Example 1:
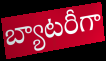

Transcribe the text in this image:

బ్యాటరీగా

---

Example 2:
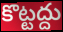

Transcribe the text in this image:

కొట్టద్దు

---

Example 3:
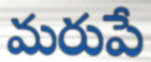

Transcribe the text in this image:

మరుపే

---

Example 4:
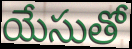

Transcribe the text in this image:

యేసుతో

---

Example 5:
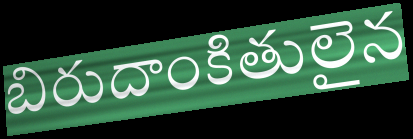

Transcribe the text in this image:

బిరుదాంకితులైన